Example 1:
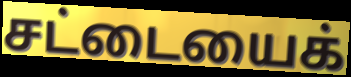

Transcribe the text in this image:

சட்டையைக்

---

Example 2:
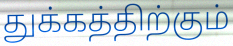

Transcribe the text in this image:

துக்கத்திற்கும்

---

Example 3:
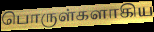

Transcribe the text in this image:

பொருள்களாகிய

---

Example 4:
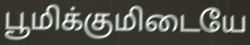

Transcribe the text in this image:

பூமிக்குமிடையே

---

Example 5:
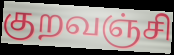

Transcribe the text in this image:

குறவஞ்சி